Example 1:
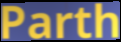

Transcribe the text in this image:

Parth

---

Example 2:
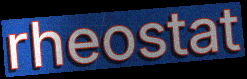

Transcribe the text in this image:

rheostat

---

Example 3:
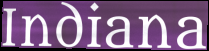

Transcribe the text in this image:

Indiana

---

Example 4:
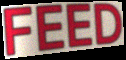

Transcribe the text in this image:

FEED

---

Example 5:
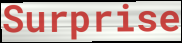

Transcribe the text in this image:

Surprise